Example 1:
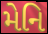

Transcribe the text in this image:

મેનિ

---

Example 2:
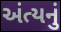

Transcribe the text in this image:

અંત્યનું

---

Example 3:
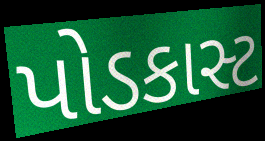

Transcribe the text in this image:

પોડકાસ્ટ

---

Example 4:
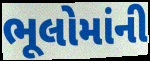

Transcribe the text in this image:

ભૂલોમાંની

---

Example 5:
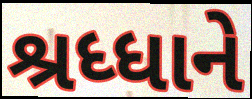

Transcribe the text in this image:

શ્રધ્ધાને